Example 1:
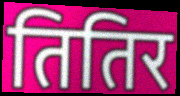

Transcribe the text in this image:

तितिर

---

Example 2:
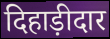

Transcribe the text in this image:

दिहाड़ीदार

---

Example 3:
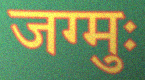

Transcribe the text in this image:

जग्मुः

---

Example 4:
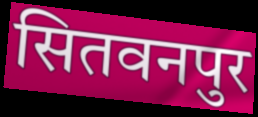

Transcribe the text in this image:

सितवनपुर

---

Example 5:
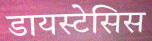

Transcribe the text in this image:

डायस्टेसिस